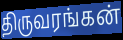
திருவரங்கன்